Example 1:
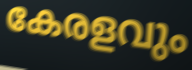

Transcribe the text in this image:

കേരളവും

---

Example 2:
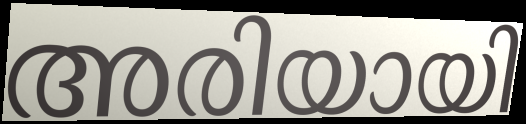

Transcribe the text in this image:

അരിയായി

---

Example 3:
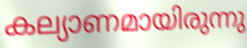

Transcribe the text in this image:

കല്യാണമായിരുന്നു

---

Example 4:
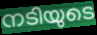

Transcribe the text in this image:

നടിയുടെ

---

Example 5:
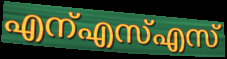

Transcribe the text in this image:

എന്എസ്എസ്